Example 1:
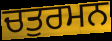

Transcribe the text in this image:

ਚਤੁਰਮਨ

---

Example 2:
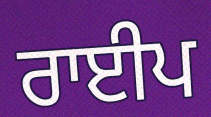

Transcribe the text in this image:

ਰਾਈਪ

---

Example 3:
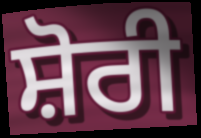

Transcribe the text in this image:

ਸ਼ੋਰੀ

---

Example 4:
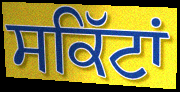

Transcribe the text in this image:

ਸਕਿੱਟਾਂ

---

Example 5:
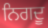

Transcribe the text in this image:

ਨਿਗਦੂ